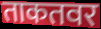
ताकतवर